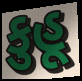
કુહૂ